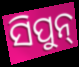
ସିପୁନ୍